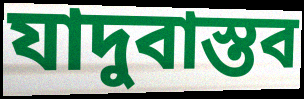
যাদুবাস্তব